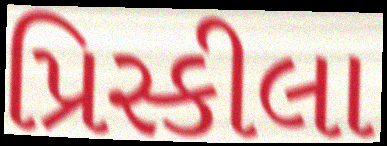
પ્રિસ્કીલા